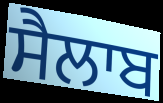
ਸੈਲਾਬ